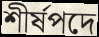
শীর্ষপদে